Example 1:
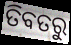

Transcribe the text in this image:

ତିବତରୁ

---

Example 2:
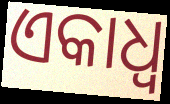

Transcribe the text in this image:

ଏକାଧ୍ଵ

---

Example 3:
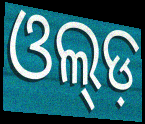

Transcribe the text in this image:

ଓଲ୍ଡ଼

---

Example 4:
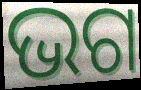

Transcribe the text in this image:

ଭଗ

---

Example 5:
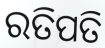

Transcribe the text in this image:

ରତିପତି